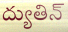
ద్యుతిన్